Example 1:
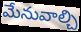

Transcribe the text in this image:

మేనువాల్చి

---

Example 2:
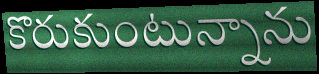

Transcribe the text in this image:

కొరుకుంటున్నాను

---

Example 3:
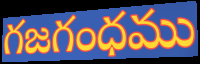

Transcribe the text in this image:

గజగంధము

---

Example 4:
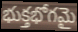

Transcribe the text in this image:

భుక్తభోగమై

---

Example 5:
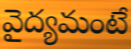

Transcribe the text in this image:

వైద్యమంటే